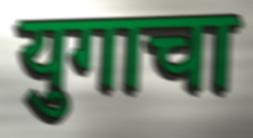
युगाचा